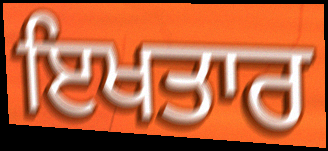
ਇਖਤਾਰ